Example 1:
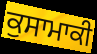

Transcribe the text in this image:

ਕੁਸਾਮਾਕੀ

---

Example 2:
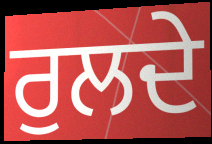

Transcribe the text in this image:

ਰੁਲਦੇ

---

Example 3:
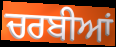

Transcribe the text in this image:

ਚਰਬੀਆਂ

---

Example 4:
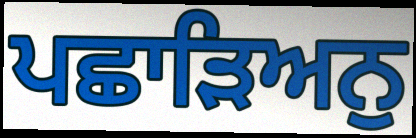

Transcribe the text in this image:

ਪਛਾੜਿਅਨੁ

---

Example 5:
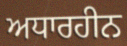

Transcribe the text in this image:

ਅਧਾਰਹੀਨ